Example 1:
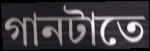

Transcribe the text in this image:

গানটাতে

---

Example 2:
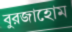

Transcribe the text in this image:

বুরজাহোম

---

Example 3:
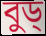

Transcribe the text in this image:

বুড্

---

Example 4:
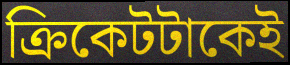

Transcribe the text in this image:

ক্রিকেটটাকেই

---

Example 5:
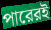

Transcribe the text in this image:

পারেরই